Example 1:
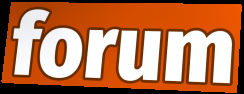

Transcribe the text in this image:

forum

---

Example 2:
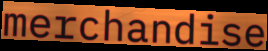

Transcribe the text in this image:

merchandise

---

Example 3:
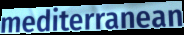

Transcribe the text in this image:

mediterranean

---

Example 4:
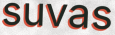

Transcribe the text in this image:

suvas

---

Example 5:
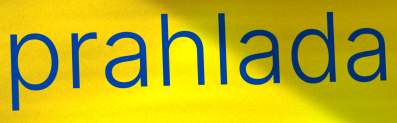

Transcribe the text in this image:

prahlada